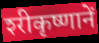
श्रीकृष्णानें